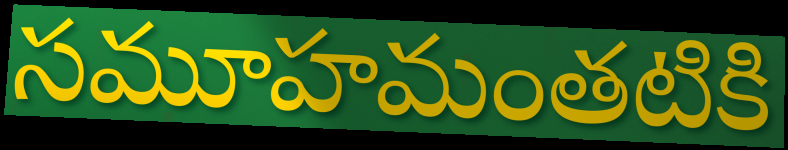
సమూహమంతటికి